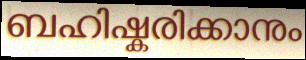
ബഹിഷ്കരിക്കാനും